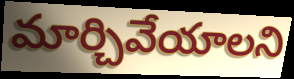
మార్చివేయాలని